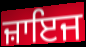
ਜ਼ਾਇਜ